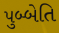
પુબ્બેતિ